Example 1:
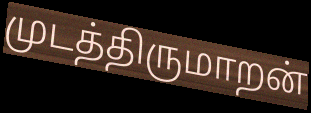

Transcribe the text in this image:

முடத்திருமாறன்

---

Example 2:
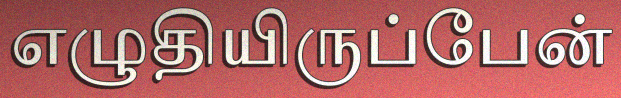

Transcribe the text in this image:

எழுதியிருப்பேன்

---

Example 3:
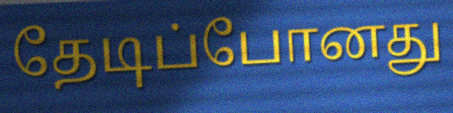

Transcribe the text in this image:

தேடிப்போனது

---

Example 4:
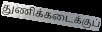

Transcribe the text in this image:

துணிக்கடைக்குப்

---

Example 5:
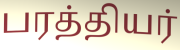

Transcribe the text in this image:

பரத்தியர்